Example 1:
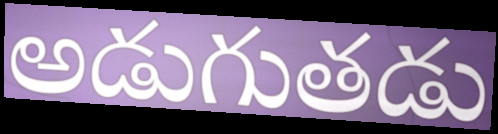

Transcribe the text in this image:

అడుగుతడు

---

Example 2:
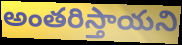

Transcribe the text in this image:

అంతరిస్తాయని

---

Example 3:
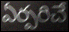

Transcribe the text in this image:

ఏర్పరిచే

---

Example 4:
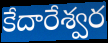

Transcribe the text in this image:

కేదారేశ్వర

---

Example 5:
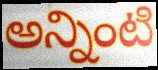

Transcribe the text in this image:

అన్నింటి